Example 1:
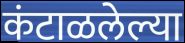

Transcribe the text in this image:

कंटाळलेल्या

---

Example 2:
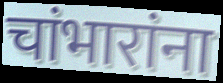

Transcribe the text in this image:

चांभारांना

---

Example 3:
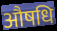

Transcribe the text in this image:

औषधि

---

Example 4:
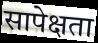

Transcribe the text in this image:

सापेक्षता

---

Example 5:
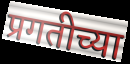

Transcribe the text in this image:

प्रगतीच्या